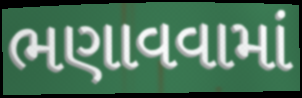
ભણાવવામાં